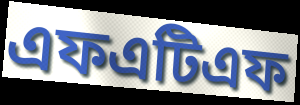
এফএটিএফ